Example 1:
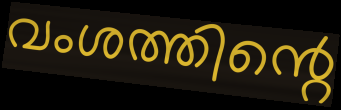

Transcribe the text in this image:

വംശത്തിന്റെ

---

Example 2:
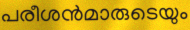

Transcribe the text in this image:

പരീശൻമാരുടെയും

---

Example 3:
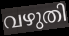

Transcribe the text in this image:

വഴുതി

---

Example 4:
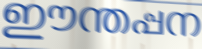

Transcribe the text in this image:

ഈന്തപ്പന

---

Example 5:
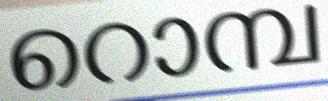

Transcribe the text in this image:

റൊമ്പ